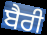
ਬੈਰੀ